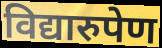
विद्यारुपेण